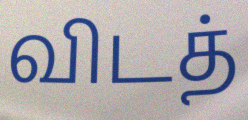
விடத்